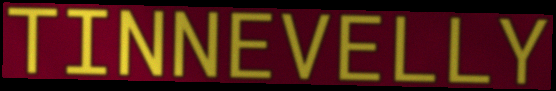
TINNEVELLY